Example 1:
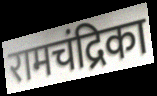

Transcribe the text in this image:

रामचंद्रिका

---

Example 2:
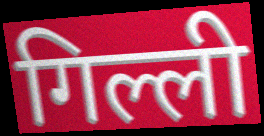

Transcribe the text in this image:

गिल्ली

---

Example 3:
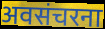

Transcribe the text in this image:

अवसंचरना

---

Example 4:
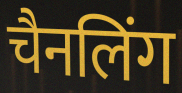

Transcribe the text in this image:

चैनलिंग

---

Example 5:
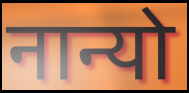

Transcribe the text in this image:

नान्यो